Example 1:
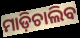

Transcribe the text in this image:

ମାଡ଼ିଚାଲିବ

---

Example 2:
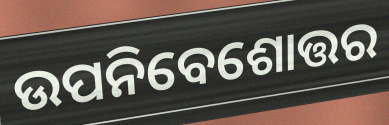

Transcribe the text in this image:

ଉପନିବେଶୋତ୍ତର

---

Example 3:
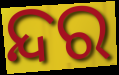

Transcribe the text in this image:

ନ୍ଦର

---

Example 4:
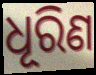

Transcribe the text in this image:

ଧୂରିଣ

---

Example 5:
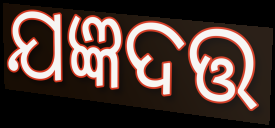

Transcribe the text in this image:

ଯଜ୍ଞଦତ୍ତ